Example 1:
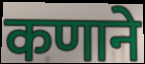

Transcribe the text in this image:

कणाने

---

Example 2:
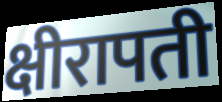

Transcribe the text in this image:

क्षीरापती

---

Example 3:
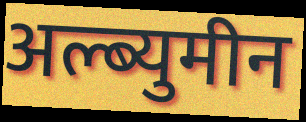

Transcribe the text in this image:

अल्ब्युमीन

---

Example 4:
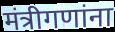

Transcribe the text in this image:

मंत्रीगणांना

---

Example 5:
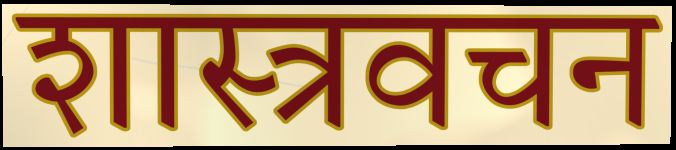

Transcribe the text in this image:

शास्त्रवचन